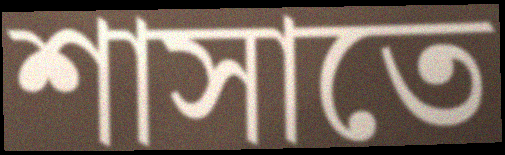
শাসাতে